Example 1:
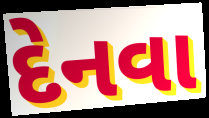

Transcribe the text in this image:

દેનવા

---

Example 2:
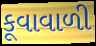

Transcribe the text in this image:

કૂવાવાળી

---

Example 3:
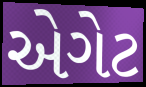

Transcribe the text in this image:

એગેટ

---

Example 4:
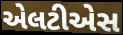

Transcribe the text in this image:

એલટીએસ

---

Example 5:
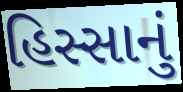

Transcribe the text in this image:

હિસ્સાનું